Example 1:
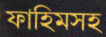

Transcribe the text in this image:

ফাহিমসহ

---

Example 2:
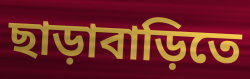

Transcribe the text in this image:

ছাড়াবাড়িতে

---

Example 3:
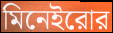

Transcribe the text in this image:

মিনেইরোর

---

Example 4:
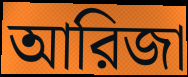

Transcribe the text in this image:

আরিজা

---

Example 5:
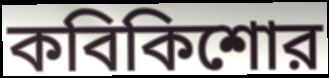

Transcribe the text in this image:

কবিকিশোর